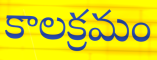
కాలక్రమం